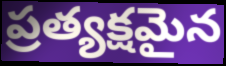
ప్రత్యక్షమైన